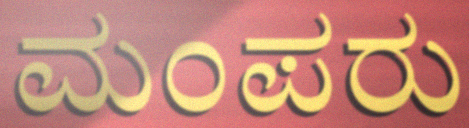
ಮಂಪರು